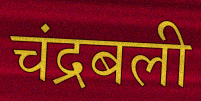
चंद्रबली